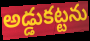
అడ్డుకట్టను